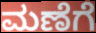
ಮಣೆಗೆ